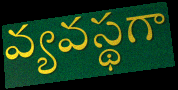
వ్యవస్థగా